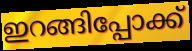
ഇറങ്ങിപ്പോക്ക്